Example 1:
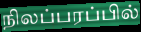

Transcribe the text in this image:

நிலப்பரப்பில்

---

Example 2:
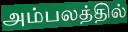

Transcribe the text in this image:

அம்பலத்தில்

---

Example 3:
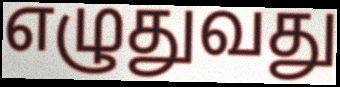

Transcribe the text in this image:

எழுதுவது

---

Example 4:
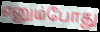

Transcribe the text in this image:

எனும்போது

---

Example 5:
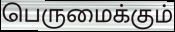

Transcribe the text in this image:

பெருமைக்கும்